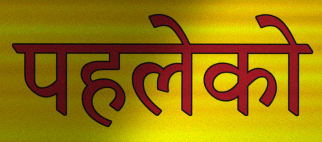
पहलेको